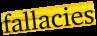
fallacies